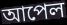
আপেল